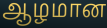
ஆழமான